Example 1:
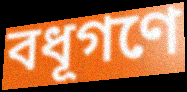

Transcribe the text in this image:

বধূগণে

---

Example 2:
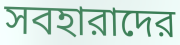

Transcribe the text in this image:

সবহারাদের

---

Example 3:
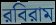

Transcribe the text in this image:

রবিরাম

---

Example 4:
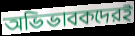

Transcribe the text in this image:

অভিভাবকদেরই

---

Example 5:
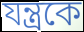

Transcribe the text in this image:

যন্ত্রকে